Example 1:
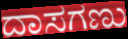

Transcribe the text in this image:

ದಾಸಗಣು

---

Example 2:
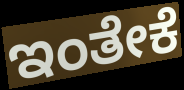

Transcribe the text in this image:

ಇಂತೇಕೆ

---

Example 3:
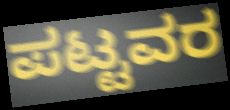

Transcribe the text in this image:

ಪಟ್ಟವರ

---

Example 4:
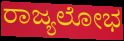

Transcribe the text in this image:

ರಾಜ್ಯಲೋಭ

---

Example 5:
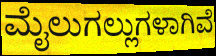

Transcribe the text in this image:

ಮೈಲುಗಲ್ಲುಗಳಾಗಿವೆ